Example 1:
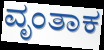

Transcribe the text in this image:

ವೃಂತಾಕ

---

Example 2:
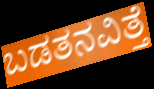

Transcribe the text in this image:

ಬಡತನವಿತ್ತೆ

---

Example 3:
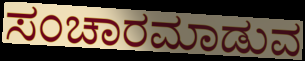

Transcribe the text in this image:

ಸಂಚಾರಮಾಡುವ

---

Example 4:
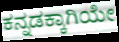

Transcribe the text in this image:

ಕನ್ನಡಕ್ಕಾಗಿಯೇ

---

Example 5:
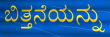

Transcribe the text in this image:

ಬಿತ್ತನೆಯನ್ನು